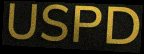
USPD